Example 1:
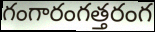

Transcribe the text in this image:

గంగారంగత్తరంగ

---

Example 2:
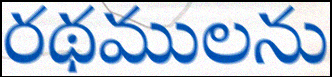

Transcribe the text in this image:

రథములను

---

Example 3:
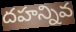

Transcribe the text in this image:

దహన్నివ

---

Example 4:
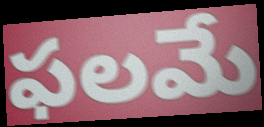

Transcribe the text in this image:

ఫలమే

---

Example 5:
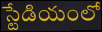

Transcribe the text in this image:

స్టేడియంలో